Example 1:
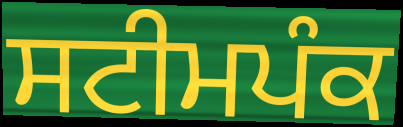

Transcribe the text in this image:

ਸਟੀਮਪੰਕ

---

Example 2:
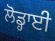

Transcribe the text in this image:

ਲੋਡ੍ਹਾਈ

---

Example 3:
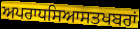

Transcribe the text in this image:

ਅਪਰਾਧਸਿਆਸਤਖਬਰਾਂ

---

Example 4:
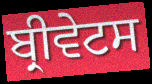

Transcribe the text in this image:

ਬ੍ਰੀਵੇਟਸ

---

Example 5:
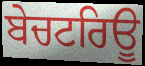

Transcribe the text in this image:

ਬੇਚਟਰਿਊ